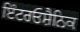
ਇੰਟਰਓਸ਼ੈਨਿਕ